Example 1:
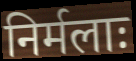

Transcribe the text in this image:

निर्मलाः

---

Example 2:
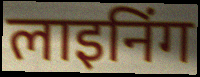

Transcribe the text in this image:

लाइनिंग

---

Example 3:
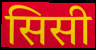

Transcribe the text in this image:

सिसी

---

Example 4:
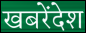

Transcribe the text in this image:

खबरेंदेश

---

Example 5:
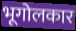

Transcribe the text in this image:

भूगोलकार